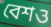
বেশও